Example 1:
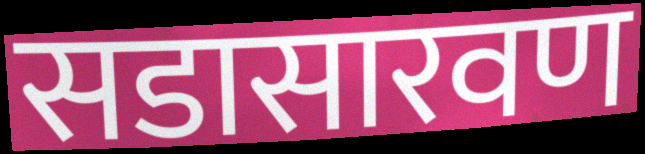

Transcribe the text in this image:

सडासारवण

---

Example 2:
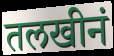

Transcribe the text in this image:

तलखीनं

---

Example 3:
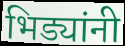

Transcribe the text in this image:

भिड्यांनी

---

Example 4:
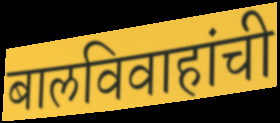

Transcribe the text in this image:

बालविवाहांची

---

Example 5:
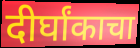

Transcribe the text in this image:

दीर्घांकाचा